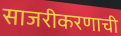
साजरीकरणाची